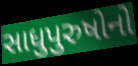
સાધુપુરુષોનો